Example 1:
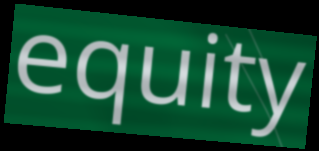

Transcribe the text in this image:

equity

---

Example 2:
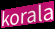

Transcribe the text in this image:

korala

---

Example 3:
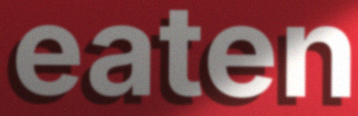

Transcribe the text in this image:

eaten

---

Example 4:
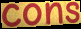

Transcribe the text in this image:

cons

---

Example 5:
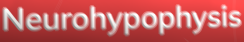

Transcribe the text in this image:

Neurohypophysis